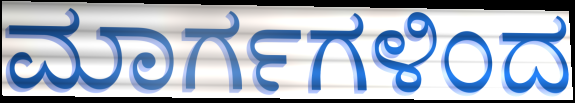
ಮಾರ್ಗಗಳಿಂದ